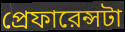
প্রেফারেন্সটা